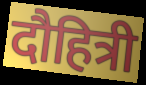
दौहित्री